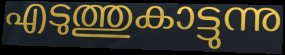
എടുത്തുകാട്ടുന്നു